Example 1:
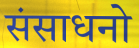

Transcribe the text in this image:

संसाधनो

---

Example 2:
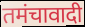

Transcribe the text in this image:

तमंचावादी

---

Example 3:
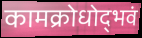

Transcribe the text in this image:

कामक्रोधोद्भवं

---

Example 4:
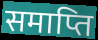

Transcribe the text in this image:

समाप्ति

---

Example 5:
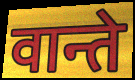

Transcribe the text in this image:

वान्ते